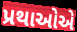
પ્રથાઓએ